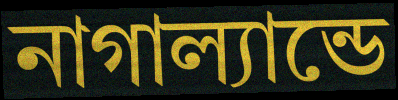
নাগাল্যান্ডে